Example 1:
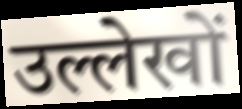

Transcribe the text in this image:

उल्लेखों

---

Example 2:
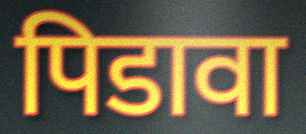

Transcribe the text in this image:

पिडावा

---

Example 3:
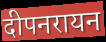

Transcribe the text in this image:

दीपनरायन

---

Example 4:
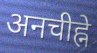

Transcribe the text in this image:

अनचीह्ने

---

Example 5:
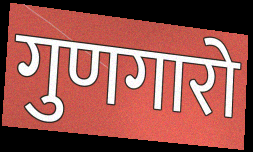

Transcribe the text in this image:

गुणगारो